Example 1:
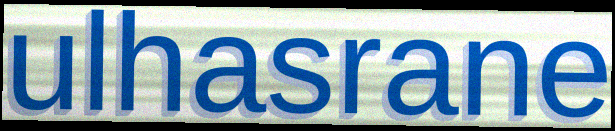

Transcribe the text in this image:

ulhasrane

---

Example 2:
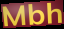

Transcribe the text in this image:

Mbh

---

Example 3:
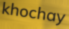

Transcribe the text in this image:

khochay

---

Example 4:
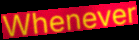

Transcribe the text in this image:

Whenever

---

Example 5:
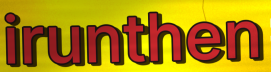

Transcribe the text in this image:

irunthen